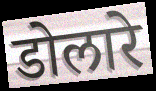
डोलारे